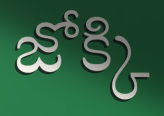
జోక్కి